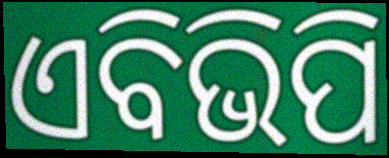
ଏବିଭିପି